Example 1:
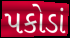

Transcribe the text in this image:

પકોડાં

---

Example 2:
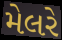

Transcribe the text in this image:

મેલરે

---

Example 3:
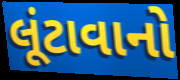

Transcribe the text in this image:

લૂંટાવાનો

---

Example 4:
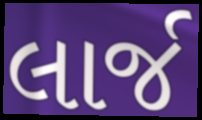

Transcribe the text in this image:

લાર્જ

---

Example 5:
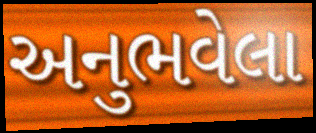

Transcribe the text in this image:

અનુભવેલા